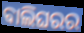
ବାଲିଘରର